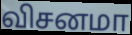
விசனமா